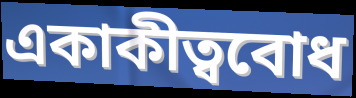
একাকীত্ববোধ